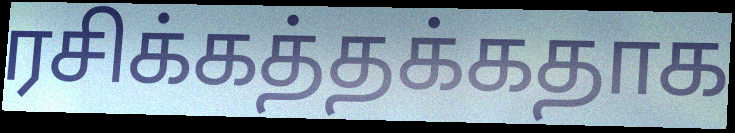
ரசிக்கத்தக்கதாக